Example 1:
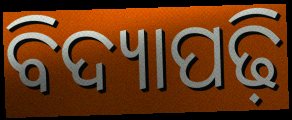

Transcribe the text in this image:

ବିଦ୍ୟାପଢ଼ି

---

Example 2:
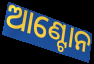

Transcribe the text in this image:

ଆଣ୍ଟୋନ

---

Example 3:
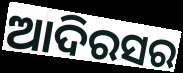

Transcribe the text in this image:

ଆଦିରସର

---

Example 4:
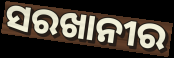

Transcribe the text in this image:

ସରଖାନୀର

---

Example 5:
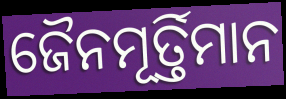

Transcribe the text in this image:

ଜୈନମୂର୍ତ୍ତିମାନ